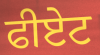
ਫੀਏਟ